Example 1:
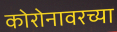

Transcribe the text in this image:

कोरोनावरच्या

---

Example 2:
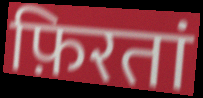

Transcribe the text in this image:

फ़िरतां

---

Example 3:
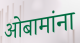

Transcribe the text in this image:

ओबामांना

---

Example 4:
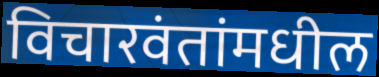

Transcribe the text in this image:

विचारवंतांमधील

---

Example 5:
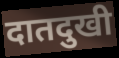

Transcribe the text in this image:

दातदुखी